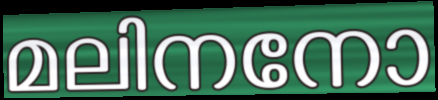
മലിനനോ